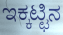
ಇಕ್ಕಟ್ಟಿನ